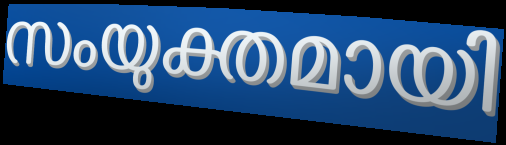
സംയുക്തമായി